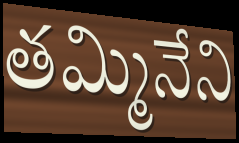
తమ్మినేని